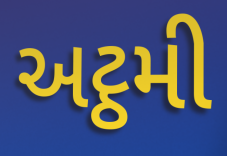
અટ્ઠમી